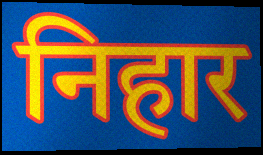
निहार